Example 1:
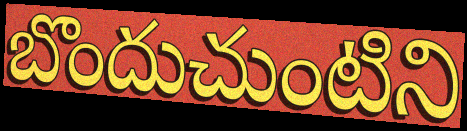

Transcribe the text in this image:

బొందుచుంటిని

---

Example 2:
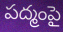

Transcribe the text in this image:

పద్మంపై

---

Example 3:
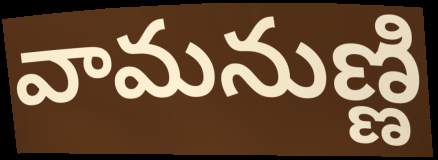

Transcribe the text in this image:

వామనుణ్ణి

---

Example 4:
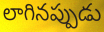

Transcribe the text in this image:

లాగినప్పుడు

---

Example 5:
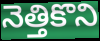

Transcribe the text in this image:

నెత్తికొని